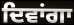
ਦਿਵਾਂਗਾ